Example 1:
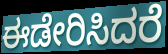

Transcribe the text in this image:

ಈಡೇರಿಸಿದರೆ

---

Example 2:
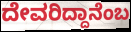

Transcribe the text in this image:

ದೇವರಿದ್ದಾನೆಂಬ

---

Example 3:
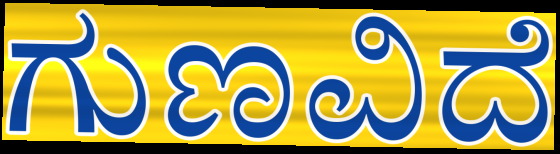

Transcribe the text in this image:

ಗುಣವಿದೆ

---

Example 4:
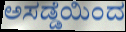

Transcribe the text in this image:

ಅಸಡ್ಡೆಯಿಂದ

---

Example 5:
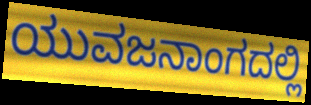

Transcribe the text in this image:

ಯುವಜನಾಂಗದಲ್ಲಿ